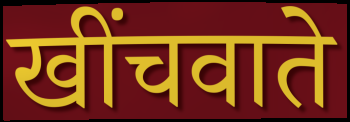
खींचवाते